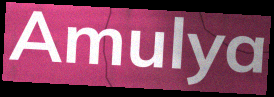
Amulya